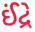
ઈંદ્રે